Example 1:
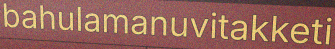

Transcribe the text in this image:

bahulamanuvitakketi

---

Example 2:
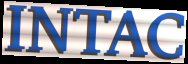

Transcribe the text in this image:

INTAC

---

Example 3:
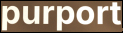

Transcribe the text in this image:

purport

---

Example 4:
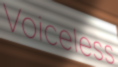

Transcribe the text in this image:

Voiceless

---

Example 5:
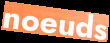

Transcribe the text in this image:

noeuds